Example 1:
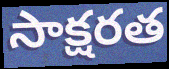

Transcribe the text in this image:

సాక్షరత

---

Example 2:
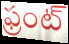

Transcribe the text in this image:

ఫ్రంట్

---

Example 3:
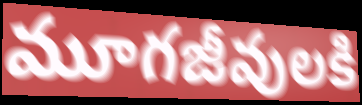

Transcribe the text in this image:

మూగజీవులకి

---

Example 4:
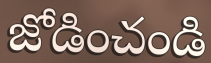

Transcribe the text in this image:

జోడించండి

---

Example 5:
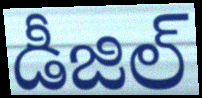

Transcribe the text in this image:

డీజిల్